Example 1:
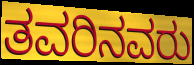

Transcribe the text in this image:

ತವರಿನವರು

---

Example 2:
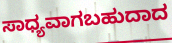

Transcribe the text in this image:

ಸಾಧ್ಯವಾಗಬಹುದಾದ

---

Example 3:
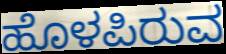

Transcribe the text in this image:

ಹೊಳಪಿರುವ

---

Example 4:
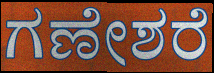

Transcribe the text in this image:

ಗಣೇಶರೆ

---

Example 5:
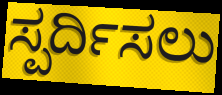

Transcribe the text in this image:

ಸ್ಪರ್ದಿಸಲು